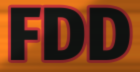
FDD